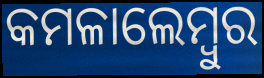
କମଳାଲେମ୍ବୁର